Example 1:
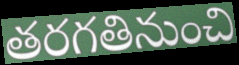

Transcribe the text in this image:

తరగతినుంచి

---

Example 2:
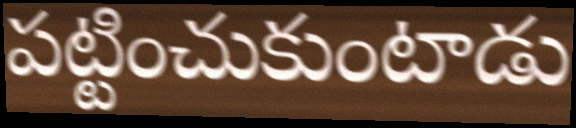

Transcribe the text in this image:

పట్టించుకుంటాడు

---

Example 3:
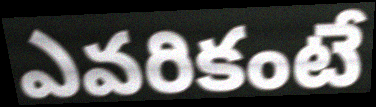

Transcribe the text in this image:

ఎవరికంటే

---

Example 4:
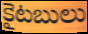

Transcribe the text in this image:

కైటబులు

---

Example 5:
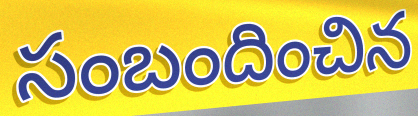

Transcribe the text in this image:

సంబందించిన